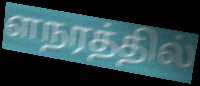
ளநரத்தில்